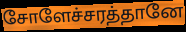
சோளேச்சரத்தானே